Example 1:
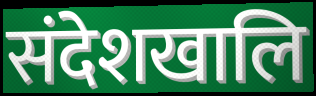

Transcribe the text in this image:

संदेशखालि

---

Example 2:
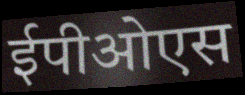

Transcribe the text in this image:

ईपीओएस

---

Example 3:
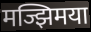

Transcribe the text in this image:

मज्झिमया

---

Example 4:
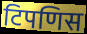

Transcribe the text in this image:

टिपणिस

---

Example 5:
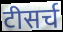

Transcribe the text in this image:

टीसर्च